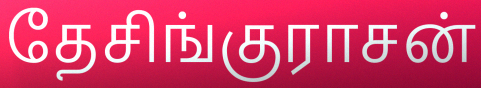
தேசிங்குராசன்